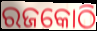
ରଜକୋଠି